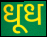
धूध